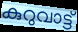
കുറുവാട്ട്